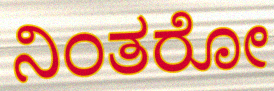
ನಿಂತರೋ